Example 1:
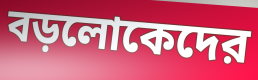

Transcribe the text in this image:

বড়লোকেদের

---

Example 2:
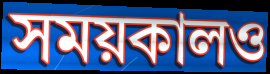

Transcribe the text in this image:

সময়কালও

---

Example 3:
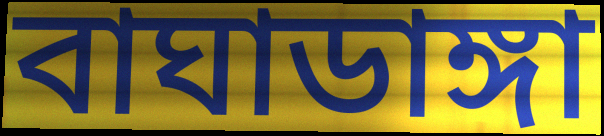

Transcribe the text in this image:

বাঘাডাঙ্গা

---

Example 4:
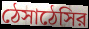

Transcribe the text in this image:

ঠেসাঠেসির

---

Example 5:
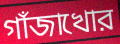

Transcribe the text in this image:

গাঁজাখোর